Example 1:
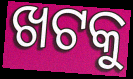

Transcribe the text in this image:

ଖଟକୁ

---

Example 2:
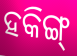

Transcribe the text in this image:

ହକିଙ୍ଗ୍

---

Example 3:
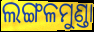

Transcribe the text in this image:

ଲଙ୍ଗଳମୁଣ୍ଡା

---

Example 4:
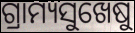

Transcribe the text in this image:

ଗ୍ରାମ୍ୟସୁଖେଷୁ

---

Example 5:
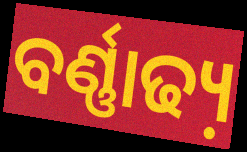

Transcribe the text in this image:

ବର୍ଣ୍ଣାଢ୍ୟ଼